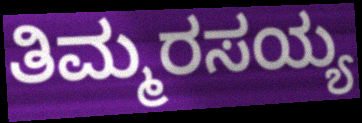
ತಿಮ್ಮರಸಯ್ಯ